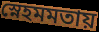
স্নেহমমতায়